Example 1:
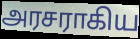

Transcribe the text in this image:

அரசராகிய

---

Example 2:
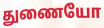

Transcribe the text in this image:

துணையோ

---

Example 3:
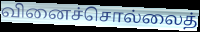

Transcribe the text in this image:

வினைச்சொல்லைத்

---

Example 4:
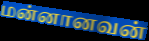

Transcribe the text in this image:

மன்னானவன்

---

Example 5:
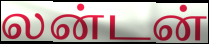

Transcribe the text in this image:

லன்டன்